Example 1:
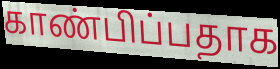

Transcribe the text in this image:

காண்பிப்பதாக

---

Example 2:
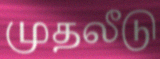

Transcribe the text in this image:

முதலீடு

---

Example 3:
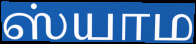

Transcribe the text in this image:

ஸ்யாம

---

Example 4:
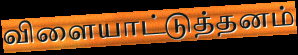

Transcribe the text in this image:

விளையாட்டுத்தனம்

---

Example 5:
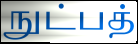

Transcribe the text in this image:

நுட்பத்